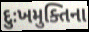
દુઃખમુક્તિના